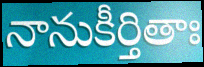
నానుకీర్తితాః